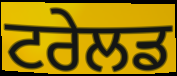
ਟਰੇਲਡ